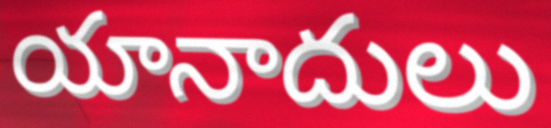
యానాదులు